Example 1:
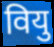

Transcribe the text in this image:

वियु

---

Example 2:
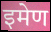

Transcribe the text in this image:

इमेण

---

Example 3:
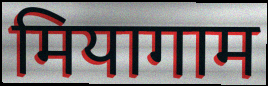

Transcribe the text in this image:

मियागाम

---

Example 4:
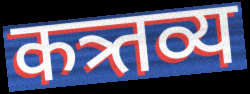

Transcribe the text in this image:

कत्र्तव्य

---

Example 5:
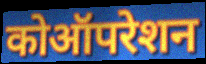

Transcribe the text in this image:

कोऑपरेशन